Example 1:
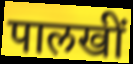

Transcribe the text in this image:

पालखीं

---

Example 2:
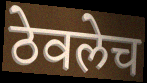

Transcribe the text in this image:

ठेवलेच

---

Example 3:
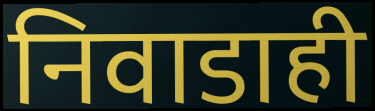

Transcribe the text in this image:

निवाडाही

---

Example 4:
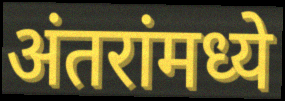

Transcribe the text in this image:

अंतरांमध्ये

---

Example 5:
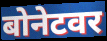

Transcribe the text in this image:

बोनेटवर